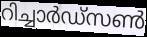
റിച്ചാർഡ്സൺ